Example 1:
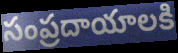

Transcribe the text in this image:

సంప్రదాయాలకి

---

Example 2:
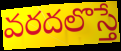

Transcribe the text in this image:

వరదలొస్తే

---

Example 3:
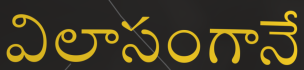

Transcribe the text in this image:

విలాసంగానే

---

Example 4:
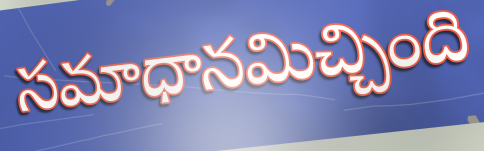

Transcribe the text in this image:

సమాధానమిచ్చింది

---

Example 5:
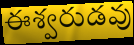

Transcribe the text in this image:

ఈశ్వరుడవు